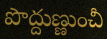
పొద్దుణ్ణుంచీ